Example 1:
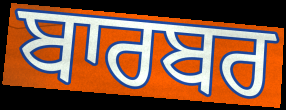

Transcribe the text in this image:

ਬਾਰਬਰ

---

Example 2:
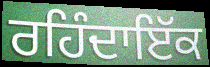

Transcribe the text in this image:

ਰਹਿੰਦਾਇੱਕ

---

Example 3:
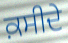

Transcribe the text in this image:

ਕ਼ਸੀਦੇ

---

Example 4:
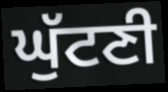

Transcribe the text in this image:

ਘੁੱਟਣੀ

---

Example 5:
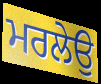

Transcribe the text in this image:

ਮਰਲੇਉ